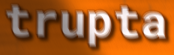
trupta